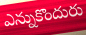
ఎన్నుకొందురు